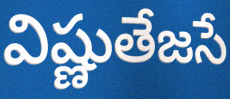
విష్ణుతేజసే